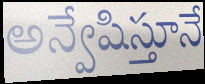
అన్వేషిస్తూనే